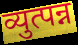
व्युत्पन्न